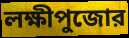
লক্ষীপুজোর